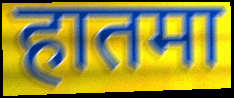
हातमा